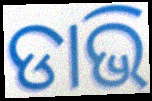
ଡାଭି